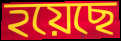
হয়েছে